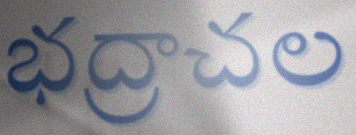
భద్రాచల